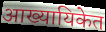
आख्यायिकेत